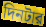
দিনটার